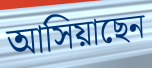
আসিয়াছেন